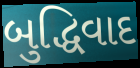
બુદ્ધિવાદ